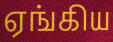
ஏங்கிய